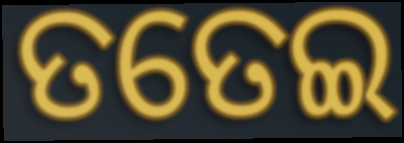
ତତେଇ